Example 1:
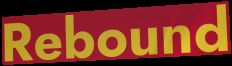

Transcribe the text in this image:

Rebound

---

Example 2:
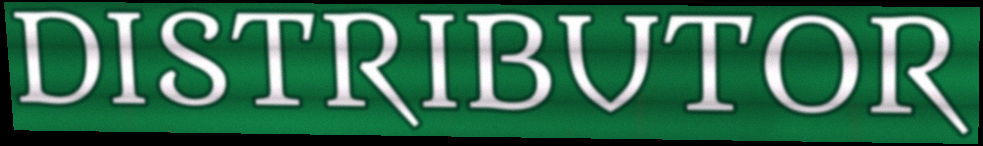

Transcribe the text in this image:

DISTRIBUTOR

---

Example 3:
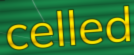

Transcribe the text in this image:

celled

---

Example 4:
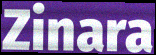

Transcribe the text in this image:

Zinara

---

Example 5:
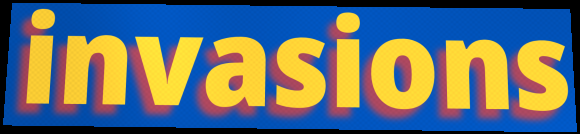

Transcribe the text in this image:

invasions